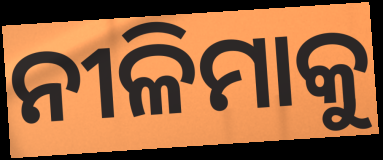
ନୀଳିମାକୁ